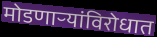
मोडणाऱ्यांविरोधात